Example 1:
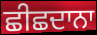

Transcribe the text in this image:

ਛੀਛਦਾਨਾ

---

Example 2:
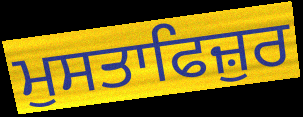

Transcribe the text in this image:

ਮੁਸਤਾਫਿਜ਼ੁਰ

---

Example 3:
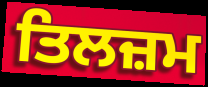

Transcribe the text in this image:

ਤਿਲਜ਼ਮ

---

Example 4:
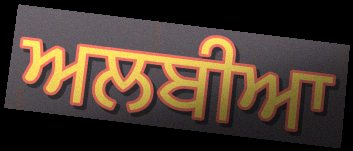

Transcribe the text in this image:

ਅਲਬੀਆ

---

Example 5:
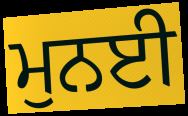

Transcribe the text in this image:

ਮੁਨਈ